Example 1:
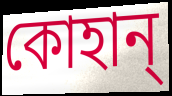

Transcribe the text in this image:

কোহান্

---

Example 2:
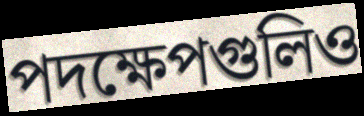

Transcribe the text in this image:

পদক্ষেপগুলিও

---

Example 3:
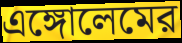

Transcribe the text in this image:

এঙ্গোলেমের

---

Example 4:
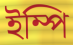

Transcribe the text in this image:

ইম্পি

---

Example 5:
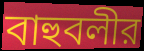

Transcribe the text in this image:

বাহুবলীর